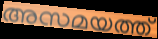
അസമയത്ത്